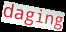
daging